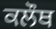
ਕਲੌਥ